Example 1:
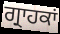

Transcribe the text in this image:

ਗ੍ਰਾਹਕਾਂ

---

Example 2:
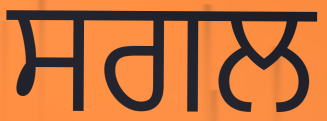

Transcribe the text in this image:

ਸਗਲ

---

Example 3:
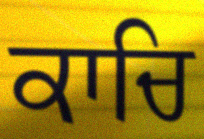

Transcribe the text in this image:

ਕਾਚਿ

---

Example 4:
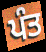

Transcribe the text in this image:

ਪੰਤ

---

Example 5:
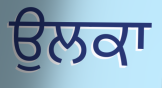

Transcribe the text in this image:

ਉਲਕਾ